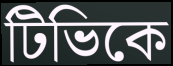
টিভিকে